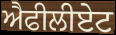
ਐਫੀਲੀਏਟ